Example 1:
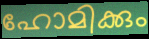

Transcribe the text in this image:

ഹോമിക്കും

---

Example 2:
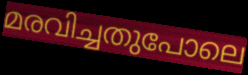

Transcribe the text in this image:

മരവിച്ചതുപോലെ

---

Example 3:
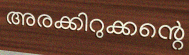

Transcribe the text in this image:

അരക്കിറുക്കന്റെ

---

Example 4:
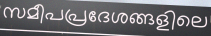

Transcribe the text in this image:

സമീപപ്രദേശങ്ങളിലെ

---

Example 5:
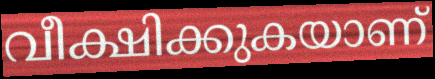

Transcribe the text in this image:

വീക്ഷിക്കുകയാണ്